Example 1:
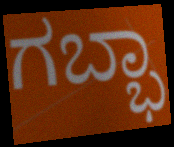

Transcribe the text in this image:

ಗಬ್ಭಾ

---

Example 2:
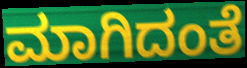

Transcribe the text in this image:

ಮಾಗಿದಂತೆ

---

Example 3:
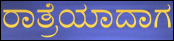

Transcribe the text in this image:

ರಾತ್ರೆಯಾದಾಗ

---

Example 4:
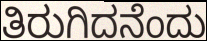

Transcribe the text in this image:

ತಿರುಗಿದನೆಂದು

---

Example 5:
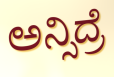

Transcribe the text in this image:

ಅನ್ಸಿದ್ರೆ